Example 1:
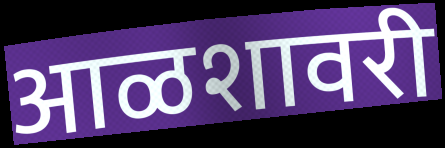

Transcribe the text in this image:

आळशावरी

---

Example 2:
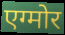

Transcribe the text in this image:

एग्मोर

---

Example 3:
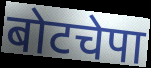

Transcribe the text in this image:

बोटचेपा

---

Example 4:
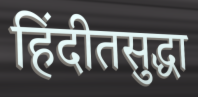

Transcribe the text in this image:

हिंदीतसुद्धा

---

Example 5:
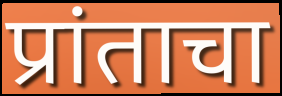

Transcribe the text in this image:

प्रांताचा